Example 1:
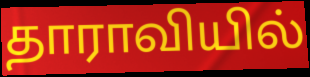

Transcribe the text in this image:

தாராவியில்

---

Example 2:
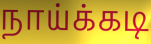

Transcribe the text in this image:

நாய்க்கடி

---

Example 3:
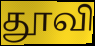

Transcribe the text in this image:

தூவி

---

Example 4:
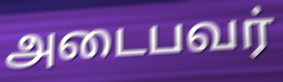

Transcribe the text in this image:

அடைபவர்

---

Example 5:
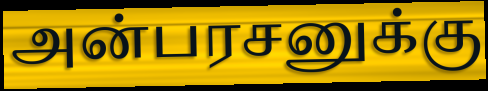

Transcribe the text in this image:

அன்பரசனுக்கு